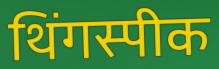
थिंगस्पीक